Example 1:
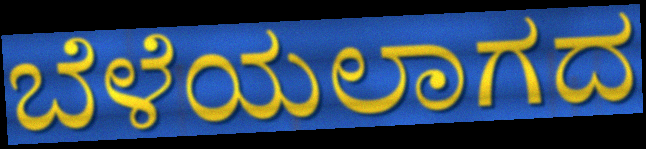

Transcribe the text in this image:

ಬೆಳೆಯಲಾಗದ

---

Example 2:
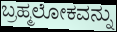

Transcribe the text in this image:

ಬ್ರಹ್ಮಲೋಕವನ್ನು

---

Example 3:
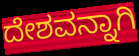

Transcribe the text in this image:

ದೇಶವನ್ನಾಗಿ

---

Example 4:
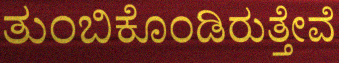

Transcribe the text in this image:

ತುಂಬಿಕೊಂಡಿರುತ್ತೇವೆ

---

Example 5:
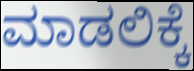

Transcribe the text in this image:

ಮಾಡಲಿಕ್ಕೆ